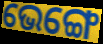
ଭେଙ୍ଗେ